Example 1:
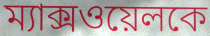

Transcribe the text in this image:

ম্যাক্সওয়েলকে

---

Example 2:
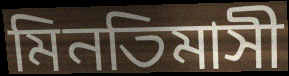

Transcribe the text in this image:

মিনতিমাসী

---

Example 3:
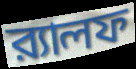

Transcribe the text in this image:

র‍্যালফ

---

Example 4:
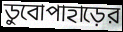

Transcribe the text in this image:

ডুবোপাহাড়ের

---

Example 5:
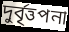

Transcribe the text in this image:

দুর্বৃত্তপনা